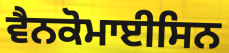
ਵੈਨਕੋਮਾਈਸਿਨ